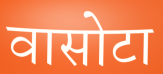
वासोटा